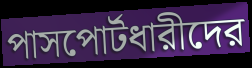
পাসপোর্টধারীদের